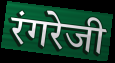
रंगरेजी